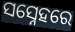
ସସ୍ନେହରେ